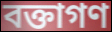
বক্তাগণ